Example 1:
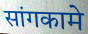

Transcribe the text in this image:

सांगकामे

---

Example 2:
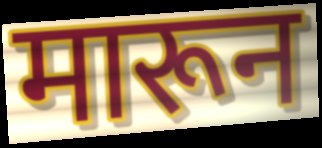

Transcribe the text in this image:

मारून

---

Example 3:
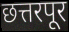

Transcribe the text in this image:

छत्तरपूर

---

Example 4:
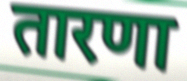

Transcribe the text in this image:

तारणा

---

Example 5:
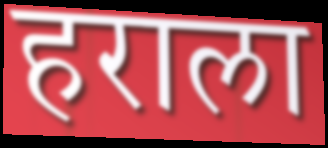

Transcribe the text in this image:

हराला